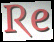
Re